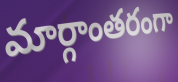
మార్గాంతరంగా